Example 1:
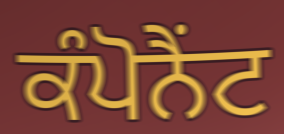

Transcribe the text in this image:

ਕੰਪੋਨੈਂਟ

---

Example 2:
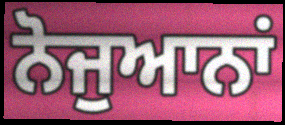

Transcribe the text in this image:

ਨੋਜੁਆਨਾਂ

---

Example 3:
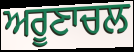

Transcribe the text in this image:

ਅਰੂਣਾਚਲ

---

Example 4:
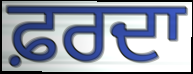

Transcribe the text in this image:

ਫ਼ਰਦਾ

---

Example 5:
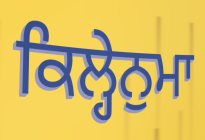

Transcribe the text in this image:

ਕਿਲ੍ਹੇਨੁਮਾ